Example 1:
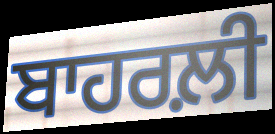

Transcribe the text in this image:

ਬਾਹਰਲ਼ੀ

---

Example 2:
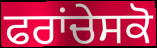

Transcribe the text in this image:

ਫਰਾਂਚੇਸਕੋ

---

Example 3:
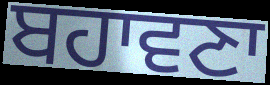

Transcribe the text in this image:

ਬਹਾਵਣਾ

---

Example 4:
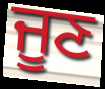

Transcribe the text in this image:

ਜੂਣ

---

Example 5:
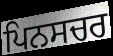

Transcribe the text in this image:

ਪਿਨਸਚਰ